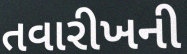
તવારીખની